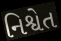
નિશ્વેત